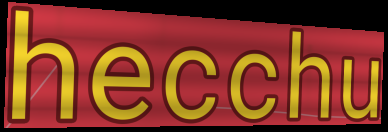
hecchu